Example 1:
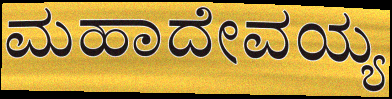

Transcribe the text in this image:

ಮಹಾದೇವಯ್ಯ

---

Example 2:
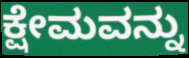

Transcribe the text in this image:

ಕ್ಷೇಮವನ್ನು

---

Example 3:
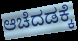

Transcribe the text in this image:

ಆಚೆದಡಕ್ಕೆ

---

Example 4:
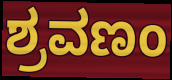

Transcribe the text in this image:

ಶ್ರವಣಂ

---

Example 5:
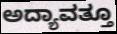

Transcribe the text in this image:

ಅದ್ಯಾವತ್ತೂ